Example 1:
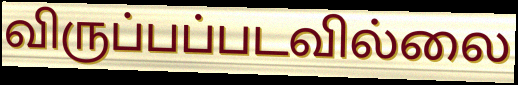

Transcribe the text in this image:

விருப்பப்படவில்லை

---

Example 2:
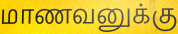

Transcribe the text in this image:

மாணவனுக்கு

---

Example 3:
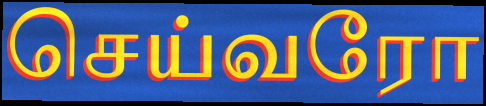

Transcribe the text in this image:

செய்வரோ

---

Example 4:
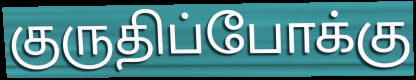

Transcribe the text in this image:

குருதிப்போக்கு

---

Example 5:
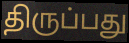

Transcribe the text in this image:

திருப்பது